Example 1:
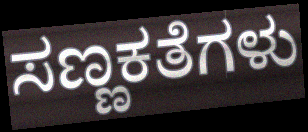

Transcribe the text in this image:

ಸಣ್ಣಕತೆಗಳು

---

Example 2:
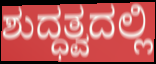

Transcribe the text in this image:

ಶುದ್ಧತ್ವದಲ್ಲಿ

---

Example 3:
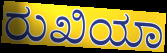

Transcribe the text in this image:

ರುಖಿಯಾ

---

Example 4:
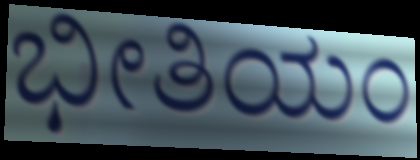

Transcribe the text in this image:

ಭೀತಿಯಂ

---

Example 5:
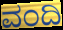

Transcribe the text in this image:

ವಂದಿ